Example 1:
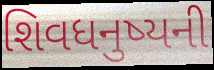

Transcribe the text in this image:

શિવધનુષ્યની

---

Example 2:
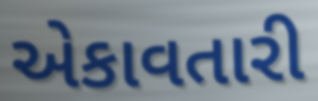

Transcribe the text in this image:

એકાવતારી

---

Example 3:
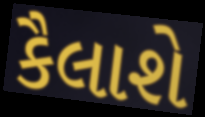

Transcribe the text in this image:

કૈલાશે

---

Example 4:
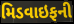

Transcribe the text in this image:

મિડવાઇફની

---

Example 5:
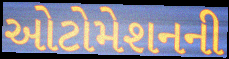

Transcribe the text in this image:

ઓટોમેશનની